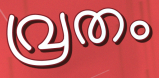
വ്രതം